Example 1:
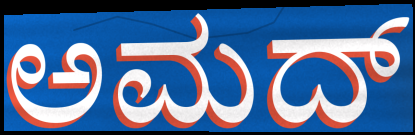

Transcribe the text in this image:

ಅಮದ್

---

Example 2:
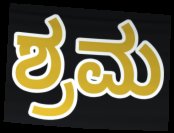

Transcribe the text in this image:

ಶ್ರಮ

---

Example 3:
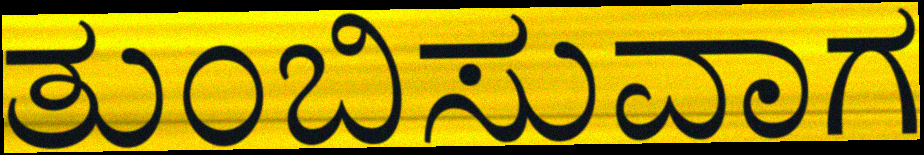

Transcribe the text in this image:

ತುಂಬಿಸುವಾಗ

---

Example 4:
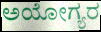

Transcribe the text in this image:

ಅಯೋಗ್ಯರ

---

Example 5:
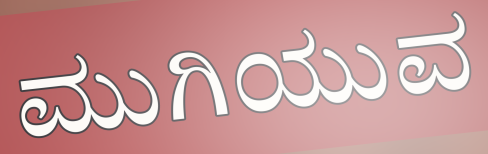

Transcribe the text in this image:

ಮುಗಿಯುವ